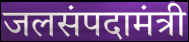
जलसंपदामंत्री